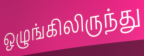
ஒழுங்கிலிருந்து